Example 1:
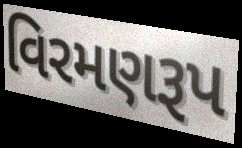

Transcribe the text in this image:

વિરમણરૂપ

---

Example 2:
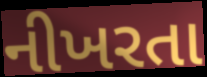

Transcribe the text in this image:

નીખરતા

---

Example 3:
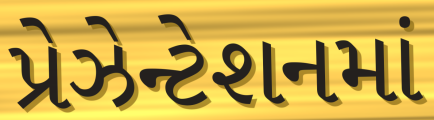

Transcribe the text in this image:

પ્રેઝેન્ટેશનમાં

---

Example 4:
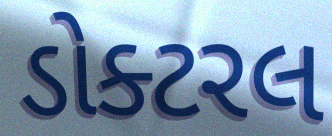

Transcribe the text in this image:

ડોક્ટરલ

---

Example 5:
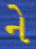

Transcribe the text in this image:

ને